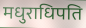
मधुराधिपति